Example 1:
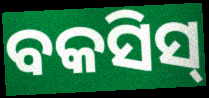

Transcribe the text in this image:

ବକସିସ୍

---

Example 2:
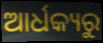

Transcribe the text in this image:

ଆର୍ଧକ୍ୟରୁ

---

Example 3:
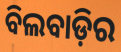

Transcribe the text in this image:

ବିଲବାଡ଼ିର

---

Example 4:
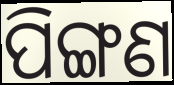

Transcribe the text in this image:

ପିଙ୍ଗଣ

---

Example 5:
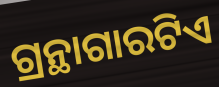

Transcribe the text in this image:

ଗ୍ରନ୍ଥାଗାରଟିଏ